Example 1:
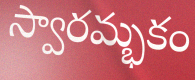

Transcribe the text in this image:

స్వారమ్భకం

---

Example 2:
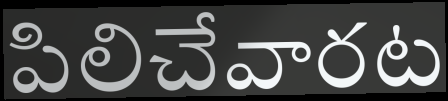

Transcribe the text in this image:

పిలిచేవారట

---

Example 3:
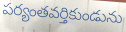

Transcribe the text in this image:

పర్యంతవర్తికుండును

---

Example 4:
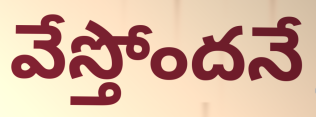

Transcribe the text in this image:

వేస్తోందనే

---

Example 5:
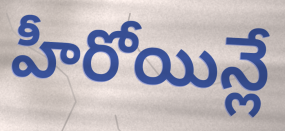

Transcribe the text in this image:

హీరోయిన్లే